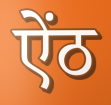
ऐंठ